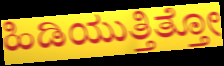
ಹಿಡಿಯುತ್ತಿತ್ತೋ